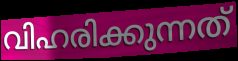
വിഹരിക്കുന്നത്